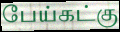
பேய்கட்கு